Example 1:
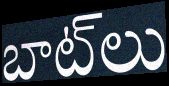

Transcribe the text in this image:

బాట్‌లు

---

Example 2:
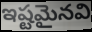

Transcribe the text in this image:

ఇష్టమైనవి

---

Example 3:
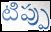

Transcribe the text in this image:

టిప్పు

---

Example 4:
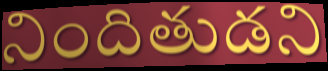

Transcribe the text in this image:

నిందితుడని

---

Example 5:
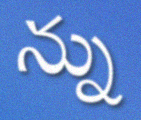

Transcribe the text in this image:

న్ను